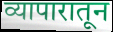
व्यापारातून